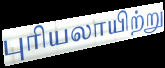
புரியலாயிற்று